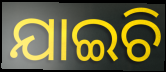
ଯାଇଚି